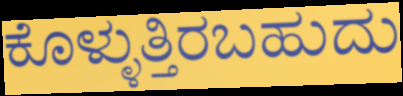
ಕೊಳ್ಳುತ್ತಿರಬಹುದು